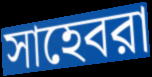
সাহেবরা